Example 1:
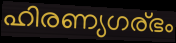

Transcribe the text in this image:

ഹിരണ്യഗര്ഭം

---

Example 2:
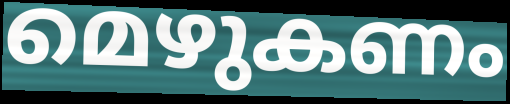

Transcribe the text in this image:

മെഴുകണം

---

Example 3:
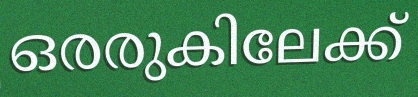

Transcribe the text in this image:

ഒരരുകിലേക്ക്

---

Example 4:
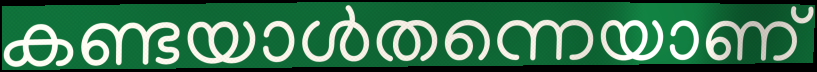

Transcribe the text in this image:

കണ്ടയാൾതന്നെയാണ്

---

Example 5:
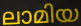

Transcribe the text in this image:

ലാമിയ